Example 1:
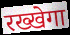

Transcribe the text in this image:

रख्खेगा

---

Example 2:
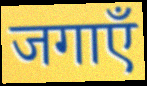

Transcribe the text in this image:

जगाएँ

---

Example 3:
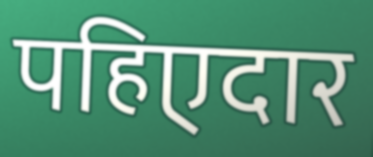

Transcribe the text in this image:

पहिएदार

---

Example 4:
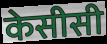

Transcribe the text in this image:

केसीसी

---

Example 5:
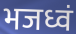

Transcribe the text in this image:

भजध्वं